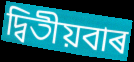
দ্বিতীয়বাৰ